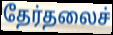
தேர்தலைச்